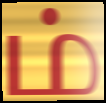
ம்